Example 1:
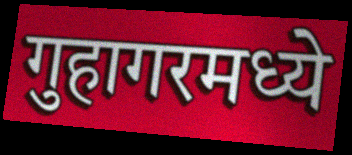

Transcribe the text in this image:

गुहागरमध्ये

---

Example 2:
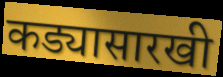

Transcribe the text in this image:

कड्यासारखी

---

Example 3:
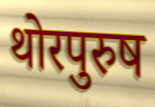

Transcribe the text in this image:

थोरपुरुष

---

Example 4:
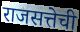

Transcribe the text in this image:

राजसत्तेची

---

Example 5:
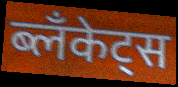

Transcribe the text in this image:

ब्लॅंकेट्स